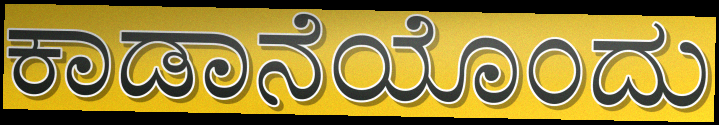
ಕಾಡಾನೆಯೊಂದು